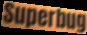
Superbug